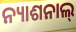
ନ୍ୟାଶନାଲ୍